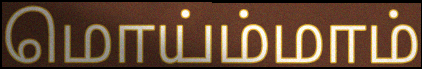
மொய்ம்மாம்